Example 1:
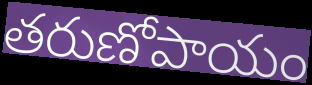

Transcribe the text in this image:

తరుణోపాయం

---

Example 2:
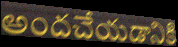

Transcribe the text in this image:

అందచేయడానికి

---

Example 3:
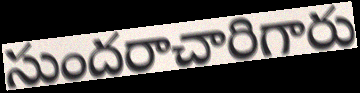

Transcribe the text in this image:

సుందరాచారిగారు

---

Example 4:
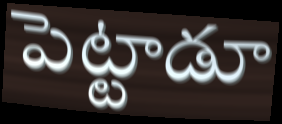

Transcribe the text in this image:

పెట్టాడూ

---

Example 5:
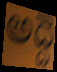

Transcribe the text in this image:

అద్దె